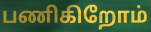
பணிகிறோம்